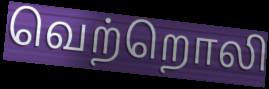
வெற்றொலி